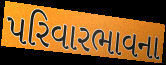
પરિવારભાવના